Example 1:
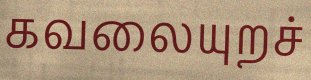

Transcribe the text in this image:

கவலையுறச்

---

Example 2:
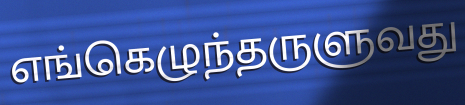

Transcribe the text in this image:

எங்கெழுந்தருளுவது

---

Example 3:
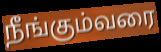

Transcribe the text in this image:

நீங்கும்வரை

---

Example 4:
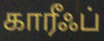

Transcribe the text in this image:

காரீஃப்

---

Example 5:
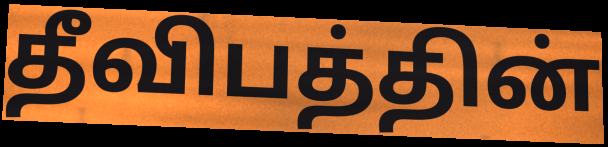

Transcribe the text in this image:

தீவிபத்தின்